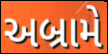
અબ્રામે